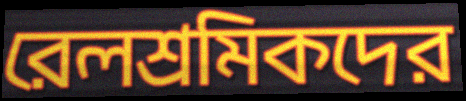
রেলশ্রমিকদের